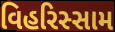
વિહરિસ્સામ